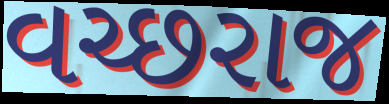
વચ્છરાજ